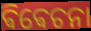
ଵିଵେଚନା